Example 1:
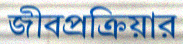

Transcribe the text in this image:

জীবপ্রক্রিয়ার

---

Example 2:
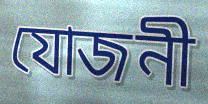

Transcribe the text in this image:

যোজনী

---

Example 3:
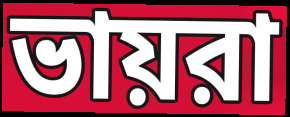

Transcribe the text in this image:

ভায়রা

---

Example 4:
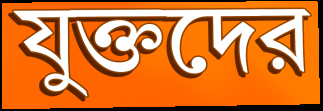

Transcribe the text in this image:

যুক্তদের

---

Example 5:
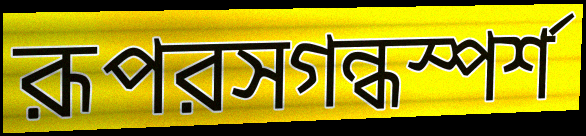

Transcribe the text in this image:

রূপরসগন্ধস্পর্শ